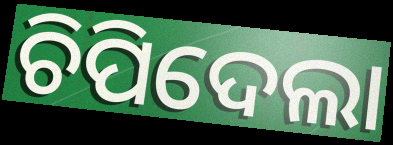
ଚିପିଦେଲା